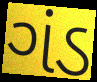
ગંડ